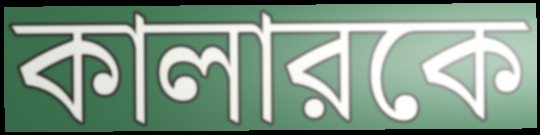
কালারকে